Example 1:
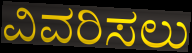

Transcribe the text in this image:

ವಿವರಿಸಲು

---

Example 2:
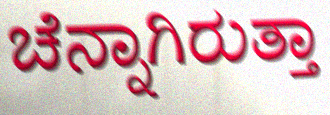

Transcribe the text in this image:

ಚೆನ್ನಾಗಿರುತ್ತಾ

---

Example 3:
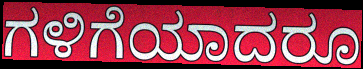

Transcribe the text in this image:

ಗಳಿಗೆಯಾದರೂ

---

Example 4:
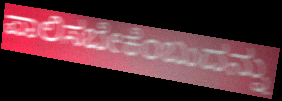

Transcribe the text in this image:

ಪಾಲಿಸಬೇಕೆಂಬುದನ್ನು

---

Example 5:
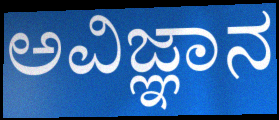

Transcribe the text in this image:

ಅವಿಜ್ಞಾನ